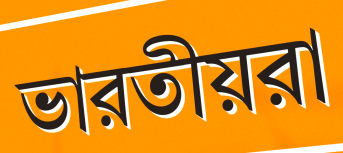
ভারতীয়রা